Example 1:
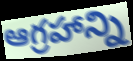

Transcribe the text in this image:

ఆగ్రహాన్ని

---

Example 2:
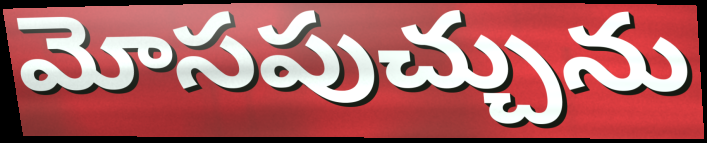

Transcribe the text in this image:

మోసపుచ్చును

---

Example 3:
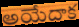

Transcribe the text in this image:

అయేదాక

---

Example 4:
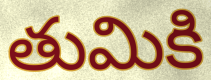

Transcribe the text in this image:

తుమికి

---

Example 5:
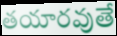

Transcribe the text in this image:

తయారవుతే